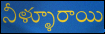
నీళ్ళూరాయి